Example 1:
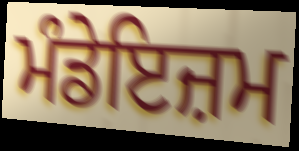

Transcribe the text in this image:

ਮੰਡੇਇਜ਼ਮ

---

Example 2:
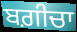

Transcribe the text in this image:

ਬਗ਼ੀਚਾ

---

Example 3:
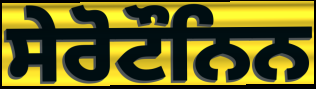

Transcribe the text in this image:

ਸੇਰੋਟੌਨਿਨ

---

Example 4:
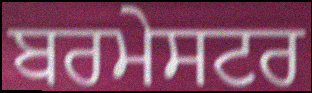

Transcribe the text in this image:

ਬਰਮੇਸਟਰ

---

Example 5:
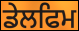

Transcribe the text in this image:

ਡੇਲਫਿਮ